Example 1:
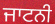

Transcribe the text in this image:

ਜਾਟਨੀ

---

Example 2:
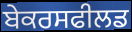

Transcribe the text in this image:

ਬੇਕਰਸਫੀਲਡ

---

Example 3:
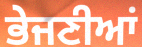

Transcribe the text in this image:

ਭੇਜਣੀਆਂ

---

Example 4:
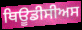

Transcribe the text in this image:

ਥਿਊਡੀਸੀਅਸ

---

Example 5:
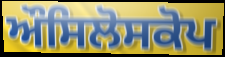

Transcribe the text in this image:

ਔਸਿਲੋਸਕੋਪ